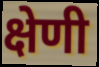
क्षेणी